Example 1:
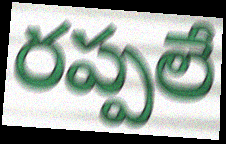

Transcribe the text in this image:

రప్పలే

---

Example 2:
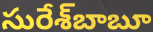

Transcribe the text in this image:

సురేశ్‌బాబూ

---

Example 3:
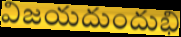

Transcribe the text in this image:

విజయదుందుభి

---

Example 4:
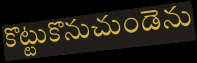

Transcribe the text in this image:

కొట్టుకొనుచుండెను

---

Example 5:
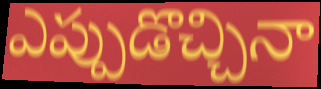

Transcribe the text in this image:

ఎప్పుడొచ్చినా